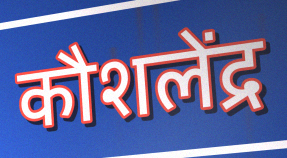
कौशलेंद्र